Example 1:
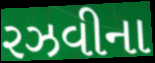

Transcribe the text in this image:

રઝવીના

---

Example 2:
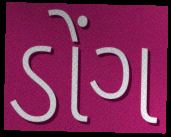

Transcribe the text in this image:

ડોંગ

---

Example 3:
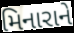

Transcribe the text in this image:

મિનારાને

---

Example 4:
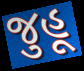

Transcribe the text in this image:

જુહૂ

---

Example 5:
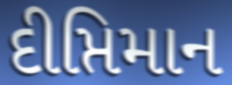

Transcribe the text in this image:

દીપ્તિમાન